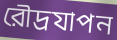
রৌদ্রযাপন